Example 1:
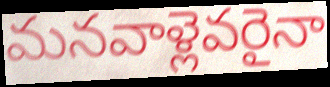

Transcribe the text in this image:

మనవాళ్లెవరైనా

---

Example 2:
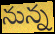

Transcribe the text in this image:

నున్న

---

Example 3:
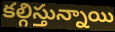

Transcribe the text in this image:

కల్గిస్తున్నాయి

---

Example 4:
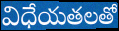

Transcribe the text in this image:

విధేయతలతో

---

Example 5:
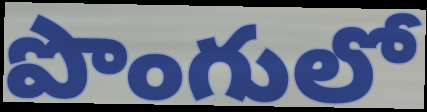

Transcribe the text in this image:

పొంగులో